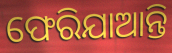
ଫେରିଯାଆନ୍ତି